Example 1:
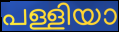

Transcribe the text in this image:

പള്ളിയാ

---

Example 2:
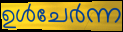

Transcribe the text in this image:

ഉൾചേർന്ന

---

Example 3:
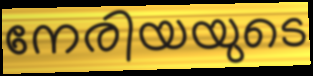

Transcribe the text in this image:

നേരിയയുടെ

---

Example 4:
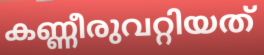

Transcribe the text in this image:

കണ്ണീരുവറ്റിയത്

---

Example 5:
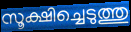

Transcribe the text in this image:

സൂക്ഷിച്ചെടുത്തു